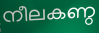
നീലകണ്ഠ